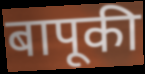
बापूकी